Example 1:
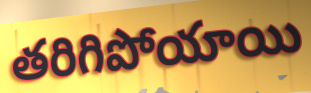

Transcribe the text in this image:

తరిగిపోయాయి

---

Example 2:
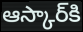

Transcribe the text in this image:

ఆస్కార్‌కి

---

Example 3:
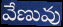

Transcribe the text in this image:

వేణువు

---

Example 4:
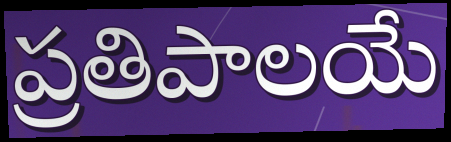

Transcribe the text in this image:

ప్రతిపాలయే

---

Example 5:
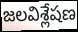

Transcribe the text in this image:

జలవిశ్లేషణ